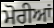
ਮੋਰੀਆਂ